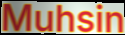
Muhsin